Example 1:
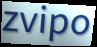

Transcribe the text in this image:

zvipo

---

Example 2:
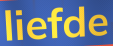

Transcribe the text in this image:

liefde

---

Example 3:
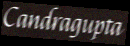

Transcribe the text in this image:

Candragupta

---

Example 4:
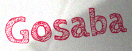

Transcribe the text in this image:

Gosaba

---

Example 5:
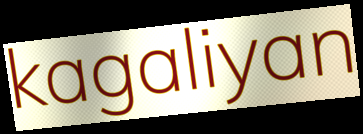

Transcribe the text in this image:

kagaliyan